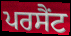
ਪਰਸੈਂਟ